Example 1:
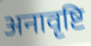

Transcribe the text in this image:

अनावृष्टि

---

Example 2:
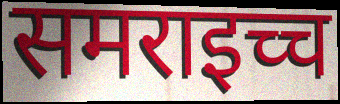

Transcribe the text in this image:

समराइच्च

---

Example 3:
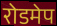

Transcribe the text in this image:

रोडमेप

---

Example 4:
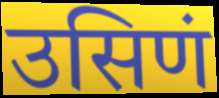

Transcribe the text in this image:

उसिणं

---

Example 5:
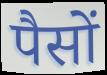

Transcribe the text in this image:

पैसों